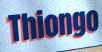
Thiongo